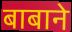
बाबाने